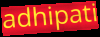
adhipati